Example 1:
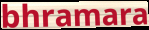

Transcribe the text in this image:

bhramara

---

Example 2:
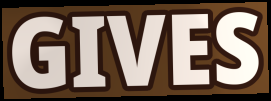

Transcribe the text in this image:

GIVES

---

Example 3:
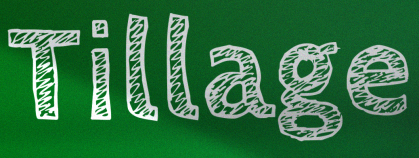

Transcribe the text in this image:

Tillage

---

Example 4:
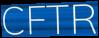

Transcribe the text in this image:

CFTR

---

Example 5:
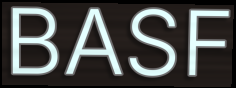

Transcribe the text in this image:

BASF